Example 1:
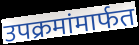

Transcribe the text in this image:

उपक्रमांमार्फत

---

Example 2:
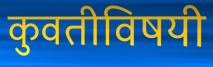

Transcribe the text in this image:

कुवतीविषयी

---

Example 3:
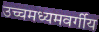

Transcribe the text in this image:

उच्चमध्यमवर्गीय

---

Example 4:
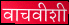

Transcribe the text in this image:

वाचवीशी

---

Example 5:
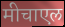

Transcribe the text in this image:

मीचाएल